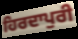
ਹਿਰਦਾਪੁਰੀ